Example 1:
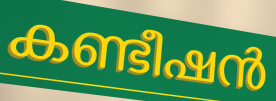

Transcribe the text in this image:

കണ്ടീഷൻ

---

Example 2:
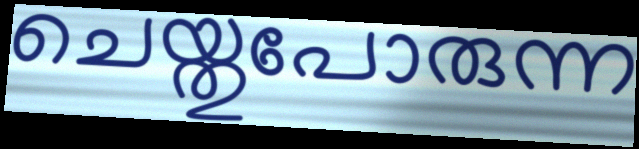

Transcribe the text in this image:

ചെയ്തുപോരുന്ന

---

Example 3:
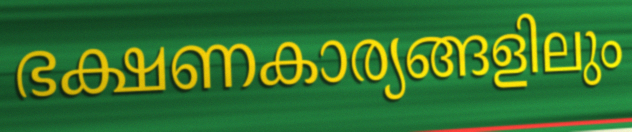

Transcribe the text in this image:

ഭക്ഷണകാര്യങ്ങളിലും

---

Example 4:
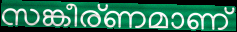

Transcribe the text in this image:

സങ്കീര്ണമാണ്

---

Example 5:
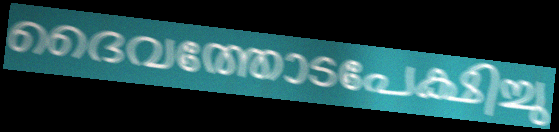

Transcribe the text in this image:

ദൈവത്തോടപേക്ഷിച്ചു